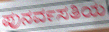
ಪುನರ್ವಸತಿಯ